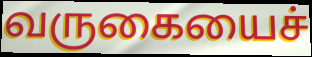
வருகையைச்